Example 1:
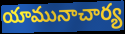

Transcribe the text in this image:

యామునాచార్య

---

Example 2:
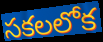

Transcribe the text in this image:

సకలలోక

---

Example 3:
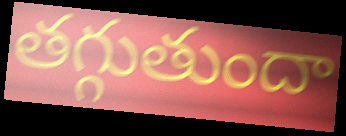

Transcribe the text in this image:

తగ్గుతుందా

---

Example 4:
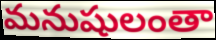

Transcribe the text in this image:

మనుషులంతా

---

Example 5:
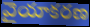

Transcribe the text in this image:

వైయాకరణ